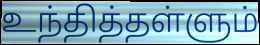
உந்தித்தள்ளும்